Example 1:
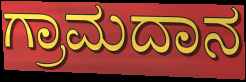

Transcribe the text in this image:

ಗ್ರಾಮದಾನ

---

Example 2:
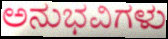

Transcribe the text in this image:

ಅನುಭವಿಗಳು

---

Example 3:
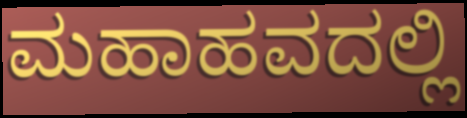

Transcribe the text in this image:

ಮಹಾಹವದಲ್ಲಿ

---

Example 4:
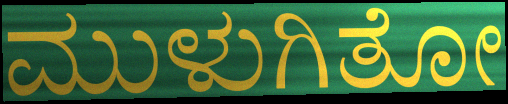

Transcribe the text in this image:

ಮುಳುಗಿತೋ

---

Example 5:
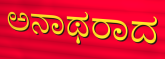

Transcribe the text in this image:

ಅನಾಥರಾದ